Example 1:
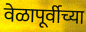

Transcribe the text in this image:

वेळापूर्वीच्या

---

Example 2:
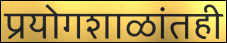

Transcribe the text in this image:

प्रयोगशाळांतही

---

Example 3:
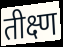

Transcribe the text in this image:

तीक्ष्ण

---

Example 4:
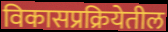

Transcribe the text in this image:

विकासप्रक्रियेतील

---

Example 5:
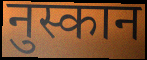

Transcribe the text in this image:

नुस्कान